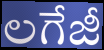
లగేజీ